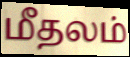
மீதலம்